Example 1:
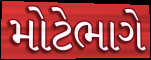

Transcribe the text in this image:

મોટેભાગે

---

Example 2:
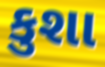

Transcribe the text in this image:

કુશા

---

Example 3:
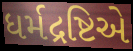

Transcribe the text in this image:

ધર્મદ્રષ્ટિએ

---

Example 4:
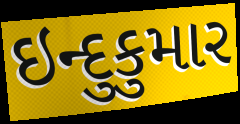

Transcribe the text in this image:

ઇન્દુકુમાર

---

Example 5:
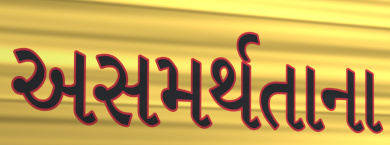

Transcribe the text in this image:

અસમર્થતાના